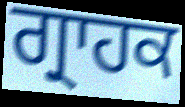
ਗ੍ਰਾਹਕ